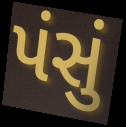
પંસું